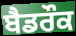
ਬੈਡਰੌਕ